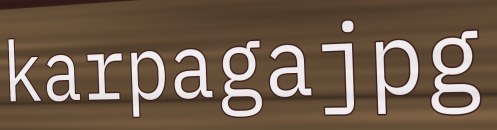
karpagajpg